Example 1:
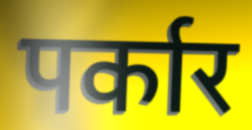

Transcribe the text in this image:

पर्कार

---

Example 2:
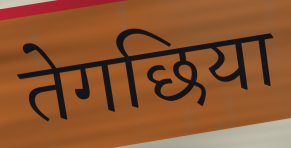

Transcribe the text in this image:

तेगछिया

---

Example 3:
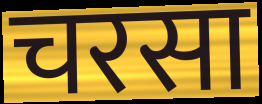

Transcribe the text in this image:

चरसा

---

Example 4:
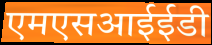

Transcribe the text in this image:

एमएसआईईडी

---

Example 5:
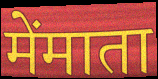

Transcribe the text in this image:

मेंमाता